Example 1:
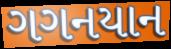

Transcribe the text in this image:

ગગનયાન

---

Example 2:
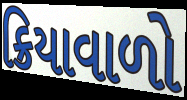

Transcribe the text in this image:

ક્રિયાવાળો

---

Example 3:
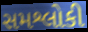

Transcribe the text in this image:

સમશ્લોકી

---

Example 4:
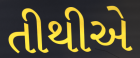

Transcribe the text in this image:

તીથીએ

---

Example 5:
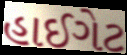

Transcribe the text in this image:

હાઈગેટ